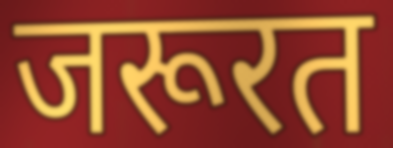
जरूरत